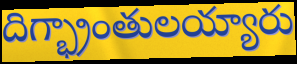
దిగ్భ్రాంతులయ్యారు